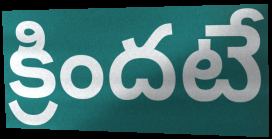
క్రిందటే